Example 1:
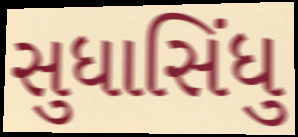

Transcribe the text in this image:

સુધાસિંધુ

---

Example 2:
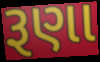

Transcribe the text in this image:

રૂણા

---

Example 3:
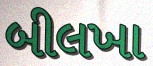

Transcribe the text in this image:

બીલખા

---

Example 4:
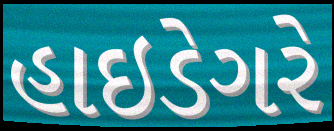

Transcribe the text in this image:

હાઇડેગરે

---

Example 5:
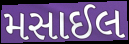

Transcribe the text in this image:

મસાઈલ